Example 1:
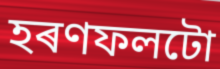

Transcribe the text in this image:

হৰণফলটো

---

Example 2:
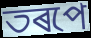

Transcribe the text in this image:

তৰপে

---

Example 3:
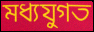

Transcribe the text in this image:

মধ্যযুগত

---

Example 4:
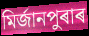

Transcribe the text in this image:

মিৰ্জানপুৰাৰ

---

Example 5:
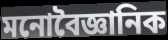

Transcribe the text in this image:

মনোবৈজ্ঞানিক